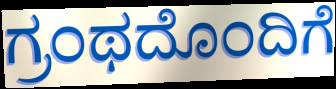
ಗ್ರಂಥದೊಂದಿಗೆ